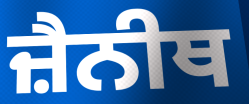
ਜ਼ੈਨੀਥ